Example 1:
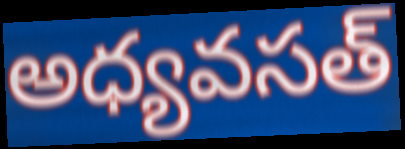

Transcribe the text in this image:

అధ్యవసత్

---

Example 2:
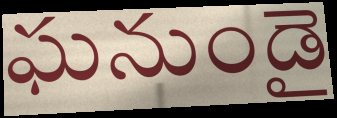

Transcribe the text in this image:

ఘనుండై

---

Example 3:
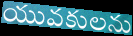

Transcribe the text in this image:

యువకులను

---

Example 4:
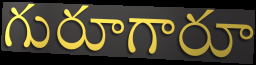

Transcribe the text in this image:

గురూగారూ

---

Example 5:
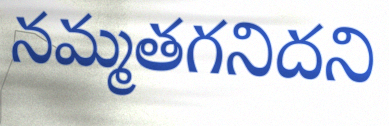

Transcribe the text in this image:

నమ్మతగనిదని